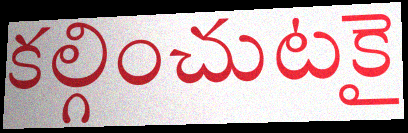
కల్గించుటకై